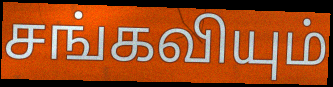
சங்கவியும்